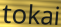
tokai